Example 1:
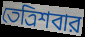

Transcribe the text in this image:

তেত্রিশবার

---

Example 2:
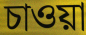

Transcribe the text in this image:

চাওয়া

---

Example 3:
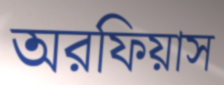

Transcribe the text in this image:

অরফিয়াস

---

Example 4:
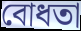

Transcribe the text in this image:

বোধতা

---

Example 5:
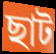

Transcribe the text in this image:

ছাট